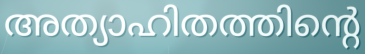
അത്യാഹിതത്തിന്റെ